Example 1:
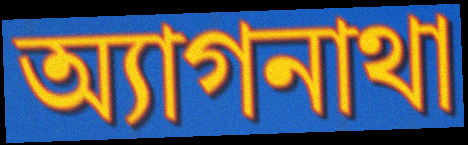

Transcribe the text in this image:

অ্যাগনাথা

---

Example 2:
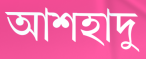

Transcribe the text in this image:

আশহাদু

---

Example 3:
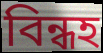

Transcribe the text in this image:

বিন্ধহ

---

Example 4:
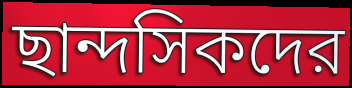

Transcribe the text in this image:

ছান্দসিকদের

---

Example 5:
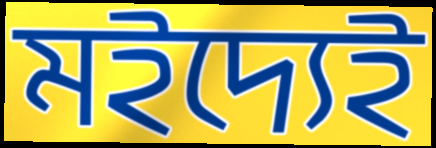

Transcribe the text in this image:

মইদ্যেই